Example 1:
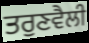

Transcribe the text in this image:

ਤਰੁਣਵੈਲੀ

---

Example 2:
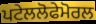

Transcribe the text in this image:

ਪਟੇਲਲੋਫੇਮੋਰਲ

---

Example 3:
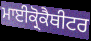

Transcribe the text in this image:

ਮਾਈਕ੍ਰੋਕੈਥੀਟਰ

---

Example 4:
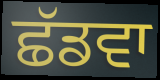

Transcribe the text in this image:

ਛੱਡਵਾ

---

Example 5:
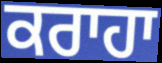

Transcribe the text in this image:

ਕਰਾਹਾ